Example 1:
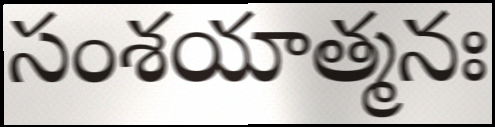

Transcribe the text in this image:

సంశయాత్మనః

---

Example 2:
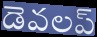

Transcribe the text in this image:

డెవలప్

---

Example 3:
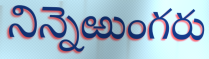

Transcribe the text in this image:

నిన్నెఱుంగరు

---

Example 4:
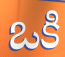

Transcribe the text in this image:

ఒకి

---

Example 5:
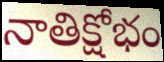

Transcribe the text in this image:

నాతిక్షోభం